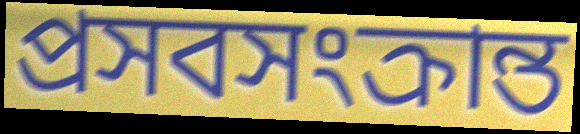
প্রসবসংক্রান্ত